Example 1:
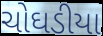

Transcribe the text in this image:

ચોઘડીયા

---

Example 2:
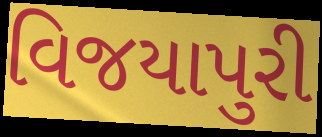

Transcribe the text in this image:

વિજયાપુરી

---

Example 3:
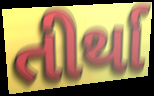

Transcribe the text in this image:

તીર્થા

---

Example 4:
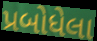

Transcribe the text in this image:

પ્રબોધેલા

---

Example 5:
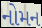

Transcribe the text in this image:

નોમન